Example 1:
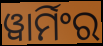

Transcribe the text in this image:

ୱାର୍ମିଂର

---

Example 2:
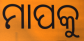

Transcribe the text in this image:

ମାପକୁ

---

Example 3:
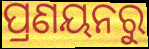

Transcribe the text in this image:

ପ୍ରଣୟନରୁ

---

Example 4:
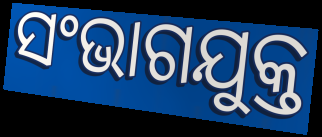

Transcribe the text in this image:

ସଂଭାଗଯୁକ୍ତ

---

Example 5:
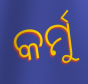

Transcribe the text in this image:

କର୍ମୁ